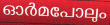
ഓർമപോലും